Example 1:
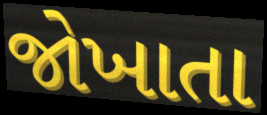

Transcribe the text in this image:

જોખાતા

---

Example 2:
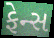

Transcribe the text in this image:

ફેન્સ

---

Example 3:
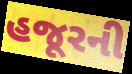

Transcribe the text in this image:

હજૂરની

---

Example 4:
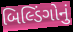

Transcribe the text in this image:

બિલ્ડિંગોનું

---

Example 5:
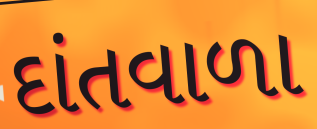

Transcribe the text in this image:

દાંતવાળા